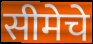
सीमेचे